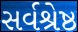
સર્વશ્રેષ્ઠ